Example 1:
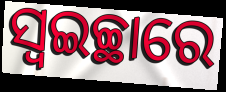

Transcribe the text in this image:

ସ୍ଵଇଚ୍ଛାରେ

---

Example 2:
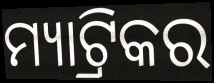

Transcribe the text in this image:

ମ୍ୟାଟ୍ରିକର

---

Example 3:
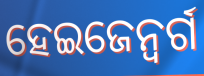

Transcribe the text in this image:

ହେଇଜେନ୍ବର୍ଗ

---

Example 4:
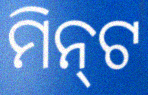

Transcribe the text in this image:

ମିନ୍‌ଟ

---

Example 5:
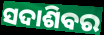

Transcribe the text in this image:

ସଦାଶିବର